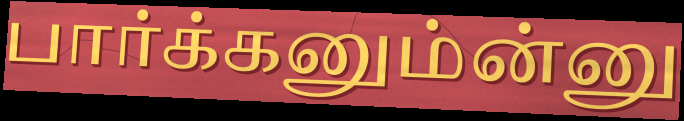
பார்க்கனும்ன்னு